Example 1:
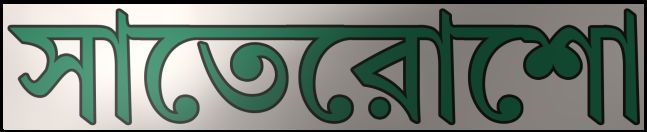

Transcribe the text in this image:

সাতেরোশো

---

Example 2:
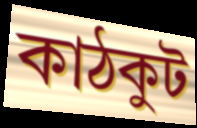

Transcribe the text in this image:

কাঠকুট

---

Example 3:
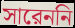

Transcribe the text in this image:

সারেননি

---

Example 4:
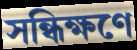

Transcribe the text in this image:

সন্ধিক্ষণে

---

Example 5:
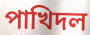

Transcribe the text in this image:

পাখিদল